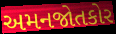
અમનજોતકોર